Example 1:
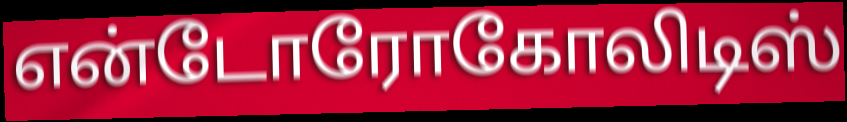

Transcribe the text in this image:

என்டோரோகோலிடிஸ்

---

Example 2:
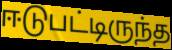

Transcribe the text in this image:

ஈடுபட்டிருந்த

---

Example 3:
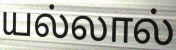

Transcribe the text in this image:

யல்லால்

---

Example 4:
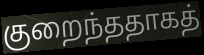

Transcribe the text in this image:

குறைந்ததாகத்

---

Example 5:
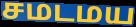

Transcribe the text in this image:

சமடமய